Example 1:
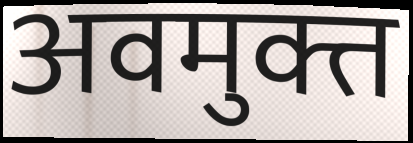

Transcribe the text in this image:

अवमुक्त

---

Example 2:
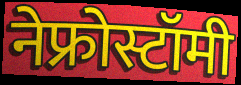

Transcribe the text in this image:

नेफ्रोस्टॉमी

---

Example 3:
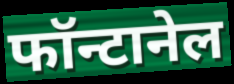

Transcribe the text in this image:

फॉन्टानेल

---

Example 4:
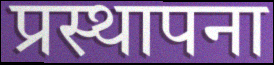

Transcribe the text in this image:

प्रस्थापना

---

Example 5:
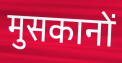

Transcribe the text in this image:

मुसकानों